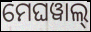
ମେଘୱାଲ୍